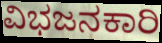
ವಿಭಜನಕಾರಿ